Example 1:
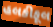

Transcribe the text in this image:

હલકીફૂલ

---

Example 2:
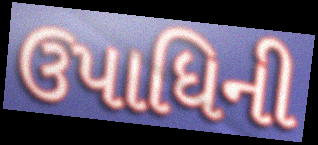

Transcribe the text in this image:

ઉપાધિની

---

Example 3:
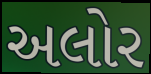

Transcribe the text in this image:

અલોર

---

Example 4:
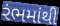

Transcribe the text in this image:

રંભમાંથી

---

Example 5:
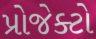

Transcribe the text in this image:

પ્રોજેક્ટો